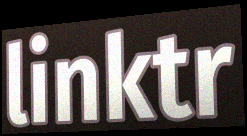
linktr